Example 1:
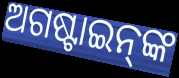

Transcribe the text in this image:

ଅଗଷ୍ଟାଇନ୍‌ଙ୍କ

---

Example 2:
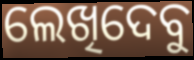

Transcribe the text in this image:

ଲେଖିଦେବୁ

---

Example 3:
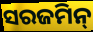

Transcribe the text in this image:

ସରଜମିନ୍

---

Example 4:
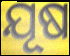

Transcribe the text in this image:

ଯୂଷ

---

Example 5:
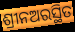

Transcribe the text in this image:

ଶ୍ରୀନଅରସ୍ଥିତ